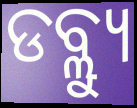
ଡବ୍ଲ୍ୟୁ